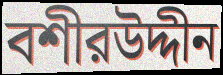
বশীরউদ্দীন